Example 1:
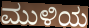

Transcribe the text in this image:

ಮುಳಿಯ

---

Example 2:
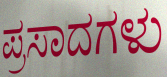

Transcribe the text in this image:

ಪ್ರಸಾದಗಳು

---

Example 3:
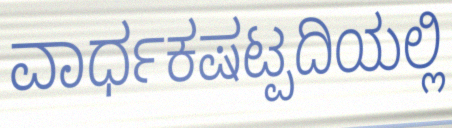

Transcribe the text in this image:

ವಾರ್ಧಕಷಟ್ಪದಿಯಲ್ಲಿ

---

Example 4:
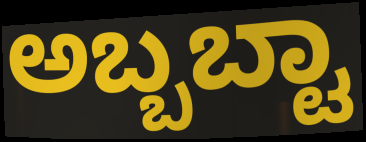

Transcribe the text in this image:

ಅಬ್ಬಬ್ಟಾ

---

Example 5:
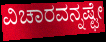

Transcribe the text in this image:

ವಿಚಾರವನ್ನಷ್ಟೇ